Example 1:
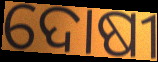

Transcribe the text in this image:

ଦୋଷୀ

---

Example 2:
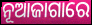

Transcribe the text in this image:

ନୂଆଜାଗାରେ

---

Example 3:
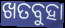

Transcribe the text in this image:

ଖତବୁହା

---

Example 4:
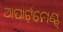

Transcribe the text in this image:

ଆପାର୍ଟ୍‌ମେଣ୍ଟ୍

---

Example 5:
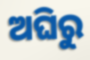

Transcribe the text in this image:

ଅଘିରୁ